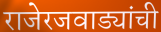
राजेरजवाड्यांची